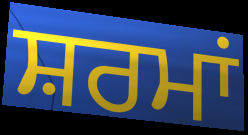
ਸ਼ਰਮਾਂ